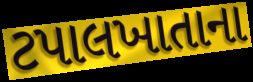
ટપાલખાતાના